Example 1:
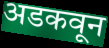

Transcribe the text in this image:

अडकवून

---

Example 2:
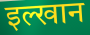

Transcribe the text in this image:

इल्खान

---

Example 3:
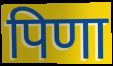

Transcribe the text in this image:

पिणा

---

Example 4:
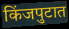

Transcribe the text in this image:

किंजपुटात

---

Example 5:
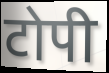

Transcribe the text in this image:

टोपी